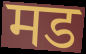
मड